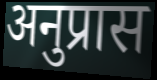
अनुप्रास